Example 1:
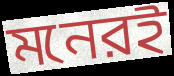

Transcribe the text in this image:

মনেরই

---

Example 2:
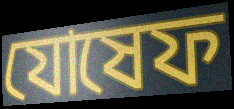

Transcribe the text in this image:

যোষেফ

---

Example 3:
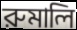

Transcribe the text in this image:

রুমালি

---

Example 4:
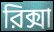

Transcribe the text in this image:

রিক্সা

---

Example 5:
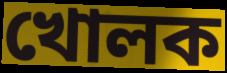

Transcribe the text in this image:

খোলক